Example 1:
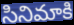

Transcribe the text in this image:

సినిమాకి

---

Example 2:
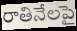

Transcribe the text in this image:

రాతినేలపై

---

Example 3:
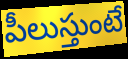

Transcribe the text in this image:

పీలుస్తుంటే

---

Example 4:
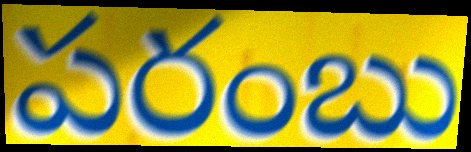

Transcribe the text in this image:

పరంబు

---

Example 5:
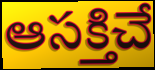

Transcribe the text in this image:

ఆసక్తిచే